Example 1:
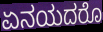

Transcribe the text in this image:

ಏನಯದರೊ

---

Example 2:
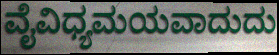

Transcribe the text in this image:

ವೈವಿಧ್ಯಮಯವಾದುದು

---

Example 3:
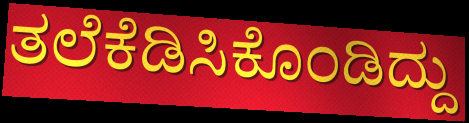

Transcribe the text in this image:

ತಲೆಕೆಡಿಸಿಕೊಂಡಿದ್ದು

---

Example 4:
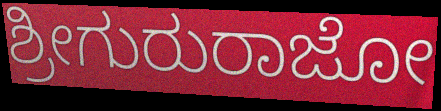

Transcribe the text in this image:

ಶ್ರೀಗುರುರಾಜೋ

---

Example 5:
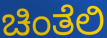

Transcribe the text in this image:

ಚಿಂತೆಲಿ